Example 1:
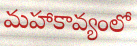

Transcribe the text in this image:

మహాకావ్యంలో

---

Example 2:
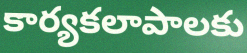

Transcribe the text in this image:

కార్యకలాపాలకు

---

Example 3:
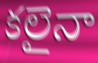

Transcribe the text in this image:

కలైనా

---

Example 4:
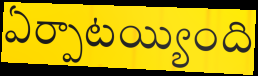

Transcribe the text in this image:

ఏర్పాటయ్యింది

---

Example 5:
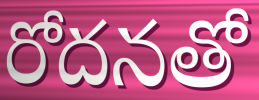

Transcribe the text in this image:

రోదనతో